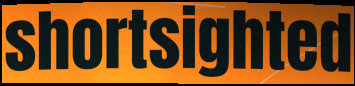
shortsighted